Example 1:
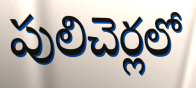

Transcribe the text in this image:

పులిచెర్లలో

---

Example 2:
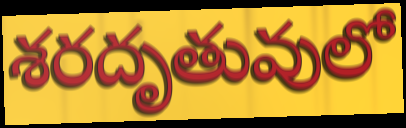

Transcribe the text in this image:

శరదృతువులో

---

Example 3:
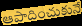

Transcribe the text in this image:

ఆపాదించుకునే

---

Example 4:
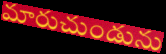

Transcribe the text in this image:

మారుచుండును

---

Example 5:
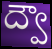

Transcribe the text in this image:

ద్వౌ